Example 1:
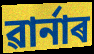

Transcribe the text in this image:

ৱাৰ্নাৰ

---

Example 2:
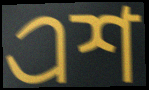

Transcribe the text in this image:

এশ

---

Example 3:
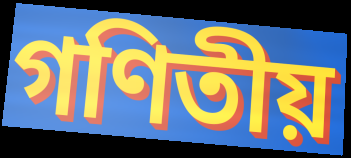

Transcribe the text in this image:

গণিতীয়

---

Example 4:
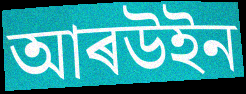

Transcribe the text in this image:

আৰউইন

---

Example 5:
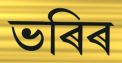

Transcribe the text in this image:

ভৰিৰ